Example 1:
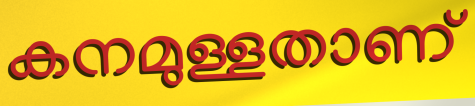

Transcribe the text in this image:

കനമുള്ളതാണ്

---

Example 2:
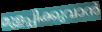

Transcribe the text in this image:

മുളപ്പിക്കുവാൻ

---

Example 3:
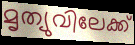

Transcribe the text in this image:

മൃത്യുവിലേക്ക്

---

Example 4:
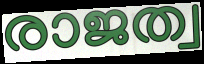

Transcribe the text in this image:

രാജത്വ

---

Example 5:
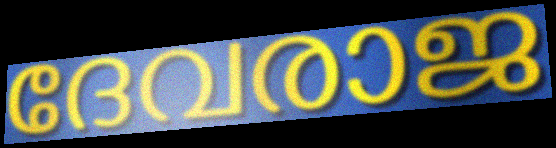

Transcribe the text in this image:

ദേവരാജ